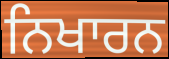
ਨਿਖਾਰਨ